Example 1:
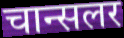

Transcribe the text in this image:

चान्सलर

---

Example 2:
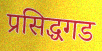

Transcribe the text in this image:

प्रसिद्धगड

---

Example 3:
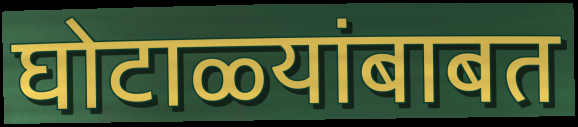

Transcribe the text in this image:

घोटाळ्यांबाबत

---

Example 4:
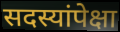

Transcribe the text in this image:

सदस्यांपेक्षा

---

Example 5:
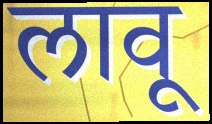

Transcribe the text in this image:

लावू